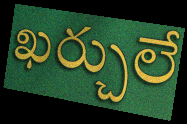
ఖర్చులే